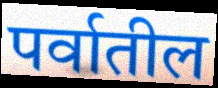
पर्वातील